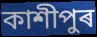
কাশীপুৰ